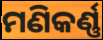
ମଣିକର୍ଣ୍ଣ